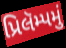
પ્રિલૅમ્પમું